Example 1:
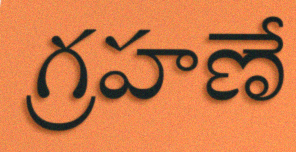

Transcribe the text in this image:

గ్రహణే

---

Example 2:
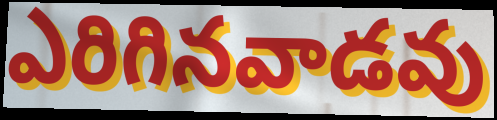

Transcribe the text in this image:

ఎరిగినవాడవు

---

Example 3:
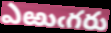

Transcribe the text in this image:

ఎఱుఁగరు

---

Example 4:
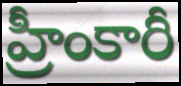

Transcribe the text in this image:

హ్రీంకారీ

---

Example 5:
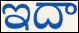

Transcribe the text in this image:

ఇదా